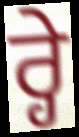
ਰ੍ਹੇ